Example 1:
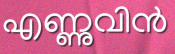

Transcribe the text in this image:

എണ്ണുവിൻ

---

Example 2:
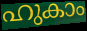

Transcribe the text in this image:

ഹുകാം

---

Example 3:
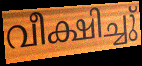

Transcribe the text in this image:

വീക്ഷിച്ചു്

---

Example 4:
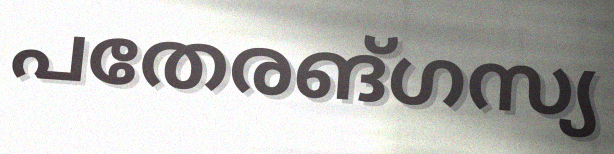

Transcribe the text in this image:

പതേരങ്ഗസ്യ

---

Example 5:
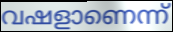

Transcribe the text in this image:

വഷളാണെന്ന്